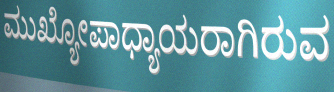
ಮುಖ್ಯೋಪಾಧ್ಯಾಯರಾಗಿರುವ